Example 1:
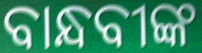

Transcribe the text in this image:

ବାନ୍ଧବୀଙ୍କ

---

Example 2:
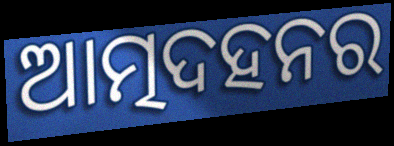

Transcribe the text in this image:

ଆତ୍ମଦହନର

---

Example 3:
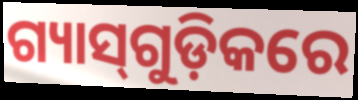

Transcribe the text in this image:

ଗ୍ୟାସ୍‌ଗୁଡ଼ିକରେ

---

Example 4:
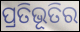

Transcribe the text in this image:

ପ୍ରତିଭୂତିର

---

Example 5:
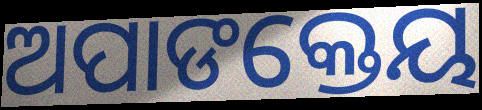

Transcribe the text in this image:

ଅପାଙକ୍ତେୟ